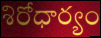
శిరోధార్యం